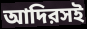
আদিরসই